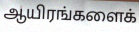
ஆயிரங்களைக்